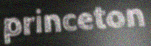
princeton